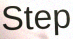
Step